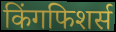
किंगफिशर्स